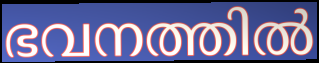
ഭവനത്തിൽ